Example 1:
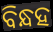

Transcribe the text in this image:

ବିନ୍ଧହ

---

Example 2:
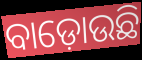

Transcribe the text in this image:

ବାଡ଼ୋଉଛି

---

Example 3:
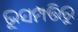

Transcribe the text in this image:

ଭୂସମ୍ପତ୍ତିରୁ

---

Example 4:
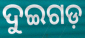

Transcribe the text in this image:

ଦୁଇଗଡ଼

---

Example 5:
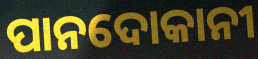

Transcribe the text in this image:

ପାନଦୋକାନୀ